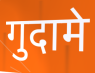
गुदामे